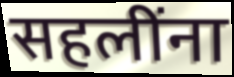
सहलींना